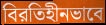
বিরতিহীনভাবে